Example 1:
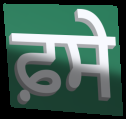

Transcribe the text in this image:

ਫ਼ਸੇ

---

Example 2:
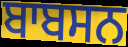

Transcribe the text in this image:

ਬਾਬਸਨ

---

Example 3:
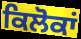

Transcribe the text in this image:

ਕਿਲੋਕਾਂ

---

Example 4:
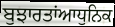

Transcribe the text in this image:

ਬੁਝਾਰਤਾਂਆਧੁਨਿਕ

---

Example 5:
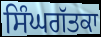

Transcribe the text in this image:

ਸਿੰਘਗੱਤਕਾ